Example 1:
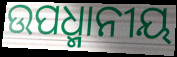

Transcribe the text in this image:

ଉପଧ୍ମାନୀୟ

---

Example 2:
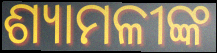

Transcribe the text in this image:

ଶ୍ୟାମଳୀଙ୍କ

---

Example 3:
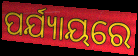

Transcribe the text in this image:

ପର୍ଯ୍ଯାୟରେ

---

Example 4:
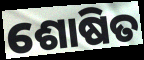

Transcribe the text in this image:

ଶୋଷିତ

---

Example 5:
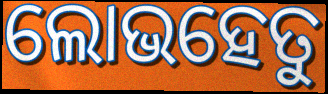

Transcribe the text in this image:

ଲୋଭହେତୁ